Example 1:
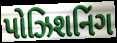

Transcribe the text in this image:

પોઝિશનિંગ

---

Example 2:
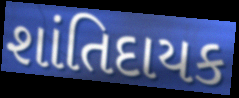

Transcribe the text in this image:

શાંતિદાયક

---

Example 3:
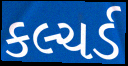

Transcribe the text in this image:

કલ્ચર્ડ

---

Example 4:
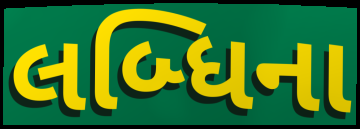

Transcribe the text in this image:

લબ્ધિના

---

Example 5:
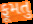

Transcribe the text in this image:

ફૂમતુ